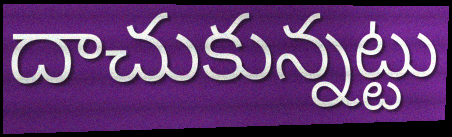
దాచుకున్నట్టు